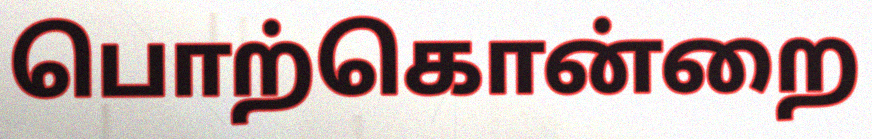
பொற்கொன்றை